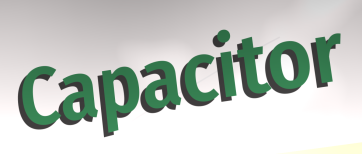
Capacitor